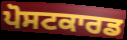
ਪੋਸਟਕਾਰਡ